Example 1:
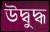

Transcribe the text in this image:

উদ্বুদ্ধ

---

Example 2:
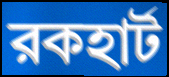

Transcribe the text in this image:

রকহার্ট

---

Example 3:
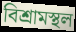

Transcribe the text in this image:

বিশ্রামস্থল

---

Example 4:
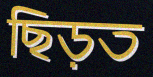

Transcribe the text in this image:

ছিড়ত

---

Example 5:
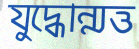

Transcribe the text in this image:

যুদ্ধোন্মত্ত